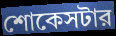
শোকেসটার